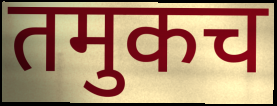
तमुकच